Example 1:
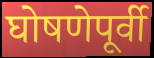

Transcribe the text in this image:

घोषणेपूर्वी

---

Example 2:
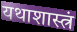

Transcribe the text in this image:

यथाशास्त्रं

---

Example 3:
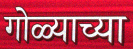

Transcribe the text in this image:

गोळ्याच्या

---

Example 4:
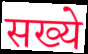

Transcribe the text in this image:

सख्ये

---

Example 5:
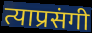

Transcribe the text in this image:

त्याप्रसंगी